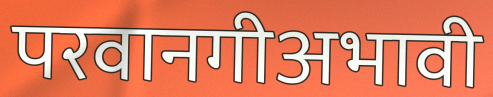
परवानगीअभावी